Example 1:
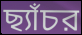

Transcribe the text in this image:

ছ্যাঁচর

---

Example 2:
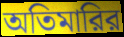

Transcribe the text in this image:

অতিমারির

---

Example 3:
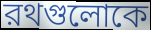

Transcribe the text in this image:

রথগুলোকে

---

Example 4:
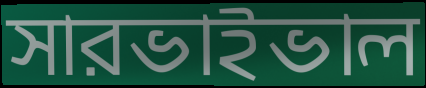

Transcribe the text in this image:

সারভাইভাল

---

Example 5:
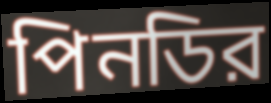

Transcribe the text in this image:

পিনডির